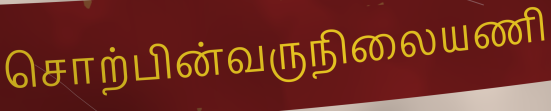
சொற்பின்வருநிலையணி